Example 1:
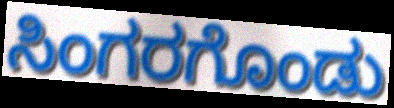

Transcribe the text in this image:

ಸಿಂಗರಗೊಂಡು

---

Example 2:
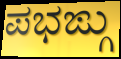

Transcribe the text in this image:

ಪಭಙ್ಗು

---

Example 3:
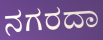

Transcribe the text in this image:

ನಗರದಾ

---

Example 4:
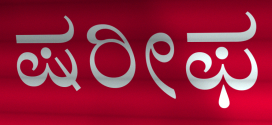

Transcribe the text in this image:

ಷರೀಫ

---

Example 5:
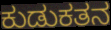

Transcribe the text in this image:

ಕುಡುಕತನ